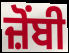
ਜ਼ੋਂਬੀ